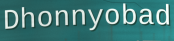
Dhonnyobad